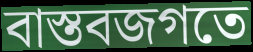
বাস্তবজগতে